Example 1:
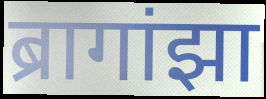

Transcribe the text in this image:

ब्रागांझा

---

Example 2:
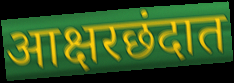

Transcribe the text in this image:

आक्षरछंदात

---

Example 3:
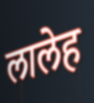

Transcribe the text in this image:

लालेह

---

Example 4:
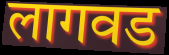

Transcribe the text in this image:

लागवड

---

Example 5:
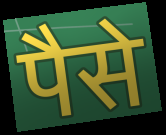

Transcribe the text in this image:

पैसे